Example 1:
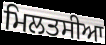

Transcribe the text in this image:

ਮਿਲਤਸੀਆ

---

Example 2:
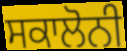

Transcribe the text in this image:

ਸਕਾਲੋਨੀ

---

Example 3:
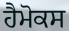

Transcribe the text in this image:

ਹੈਮੋਕਸ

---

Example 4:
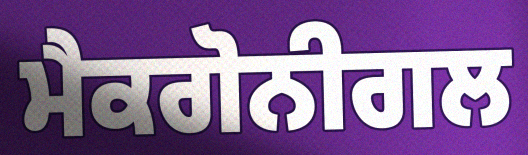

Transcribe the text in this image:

ਮੈਕਗੋਨੀਗਲ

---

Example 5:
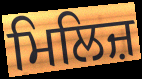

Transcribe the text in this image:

ਮਿਲਿਜ਼